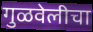
गुळवेलीचा